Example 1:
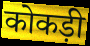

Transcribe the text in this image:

कोकड़ी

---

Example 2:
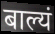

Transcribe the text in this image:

बाल्यं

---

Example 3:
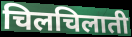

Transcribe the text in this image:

चिलचिलाती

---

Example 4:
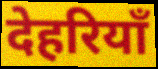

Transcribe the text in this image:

देहरियाँ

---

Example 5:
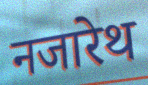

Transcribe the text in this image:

नजारेथ